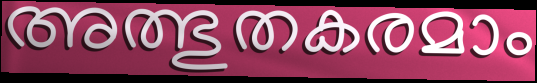
അത്ഭുതകരമാം